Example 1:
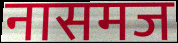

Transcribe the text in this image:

नासमज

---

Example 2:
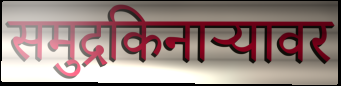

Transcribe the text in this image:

समुद्रकिनाऱ्यावर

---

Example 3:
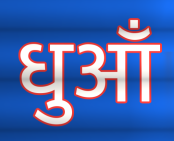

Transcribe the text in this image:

धुआँ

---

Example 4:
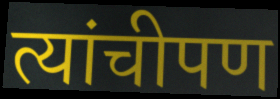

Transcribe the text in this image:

त्यांचीपण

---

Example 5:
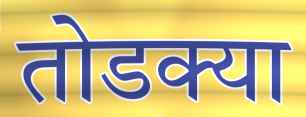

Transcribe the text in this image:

तोडक्या